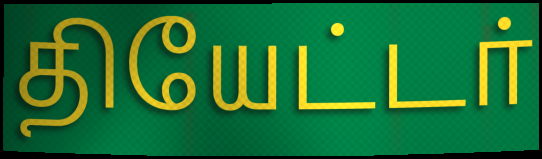
தியேட்டர்